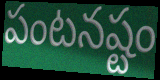
పంటనష్టం